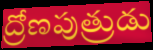
ద్రోణపుత్రుడు